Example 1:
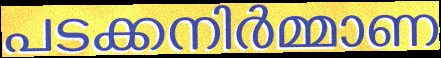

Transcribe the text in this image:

പടക്കനിർമ്മാണ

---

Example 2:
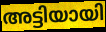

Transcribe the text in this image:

അട്ടിയായി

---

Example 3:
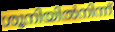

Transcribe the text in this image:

ശൂനിയിൽനിന്ന്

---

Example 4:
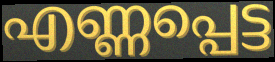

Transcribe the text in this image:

എണ്ണപ്പെട്ട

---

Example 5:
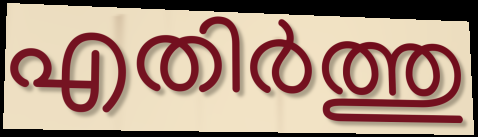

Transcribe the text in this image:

എതിർത്തു